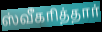
ஸ்வீகரித்தார்